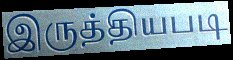
இருத்தியபடி